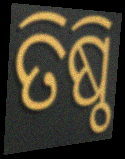
ତିଷ୍ଠି